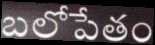
బలోపేతం